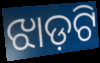
ଝାଡ଼ଟି